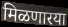
मिळणारया